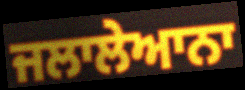
ਜਲਾਲੇਆਨਾ